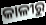
କାଳୀରୁ